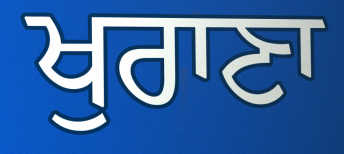
ਖੁਰਾਣਾ